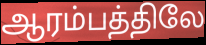
ஆரம்பத்திலே